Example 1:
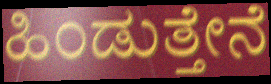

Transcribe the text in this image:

ಹಿಂಡುತ್ತೇನೆ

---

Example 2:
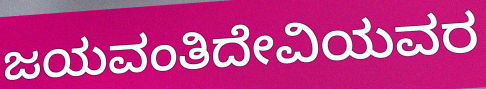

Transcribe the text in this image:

ಜಯವಂತಿದೇವಿಯವರ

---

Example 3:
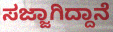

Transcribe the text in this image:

ಸಜ್ಜಾಗಿದ್ದಾನೆ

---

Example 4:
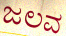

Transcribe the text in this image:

ಜಲವ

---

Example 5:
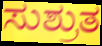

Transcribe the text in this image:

ಸುಶ್ರುತ